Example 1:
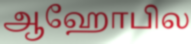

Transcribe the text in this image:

ஆஹோபில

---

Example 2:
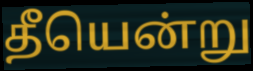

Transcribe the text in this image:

தீயென்று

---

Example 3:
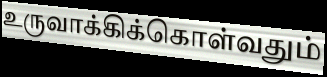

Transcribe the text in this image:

உருவாக்கிக்கொள்வதும்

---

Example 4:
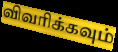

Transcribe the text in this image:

விவரிக்கவும்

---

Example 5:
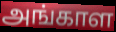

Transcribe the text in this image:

அங்காள